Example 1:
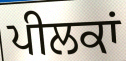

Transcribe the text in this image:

ਪੀਲਕਾਂ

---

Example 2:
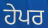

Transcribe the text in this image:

ਹੇਪਰ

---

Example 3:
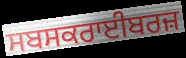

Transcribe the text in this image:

ਸਬਸਕਰਾਈਬਰਜ਼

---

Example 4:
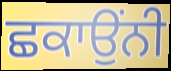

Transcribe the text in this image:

ਛਕਾਉਂਨੀ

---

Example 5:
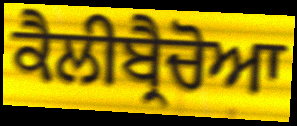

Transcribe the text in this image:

ਕੈਲੀਬ੍ਰੈਚੋਆ